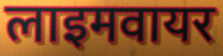
लाइमवायर